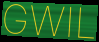
GWIL